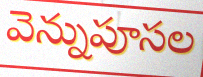
వెన్నుపూసల